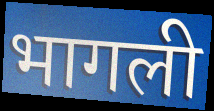
भागली